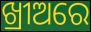
ଖ୍ରୀଅରେ